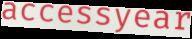
accessyear